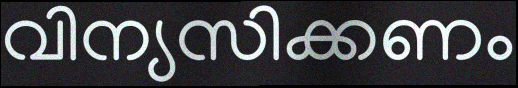
വിന്യസിക്കണം